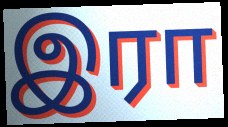
இரா